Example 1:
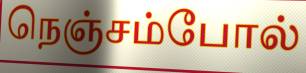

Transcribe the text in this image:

நெஞ்சம்போல்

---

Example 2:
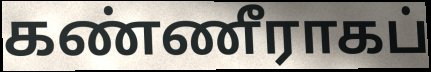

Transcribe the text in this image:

கண்ணீராகப்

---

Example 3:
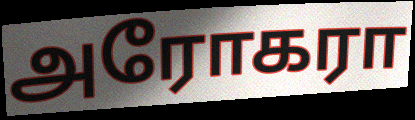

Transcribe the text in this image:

அரோகரா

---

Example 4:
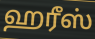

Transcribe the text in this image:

ஹரீஸ்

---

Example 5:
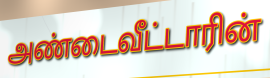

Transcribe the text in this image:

அண்டைவீட்டாரின்